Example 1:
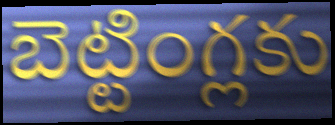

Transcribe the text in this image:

బెట్టింగ్లకు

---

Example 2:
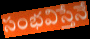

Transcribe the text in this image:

సంభవిస్తేనే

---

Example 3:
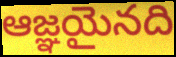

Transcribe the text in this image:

ఆజ్ఞయైనది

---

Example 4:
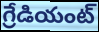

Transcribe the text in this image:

గ్రేడియంట్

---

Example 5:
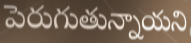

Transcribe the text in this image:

పెరుగుతున్నాయని